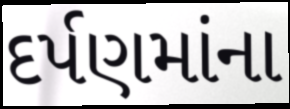
દર્પણમાંના